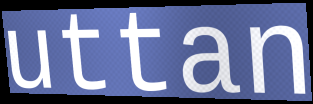
uttan